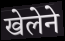
खेलेने